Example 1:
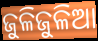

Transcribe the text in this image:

ଜୁଳିଜୁଳିଆ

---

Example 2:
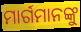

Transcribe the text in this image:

ମାର୍ଗମାନଙ୍କୁ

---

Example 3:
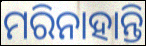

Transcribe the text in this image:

ମରିନାହାନ୍ତି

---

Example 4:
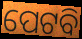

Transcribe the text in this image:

ପେଟବି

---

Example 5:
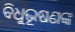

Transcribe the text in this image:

ବିଧୁଭୂଷଣଙ୍କ